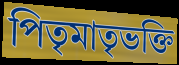
পিতৃমাতৃভক্তি